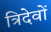
त्रिदेवों